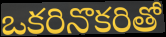
ఒకరినొకరితో